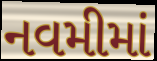
નવમીમાં